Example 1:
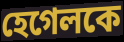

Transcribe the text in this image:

হেগেলকে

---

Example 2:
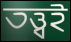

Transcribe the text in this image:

তত্ত্বই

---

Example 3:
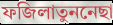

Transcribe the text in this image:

ফজিলাতুননেছা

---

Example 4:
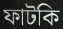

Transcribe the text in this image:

ফাটকি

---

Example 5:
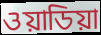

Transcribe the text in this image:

ওয়াডিয়া